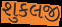
શુકલજી